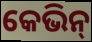
କେଭିନ୍